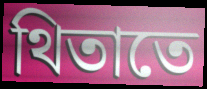
থিতাতে